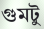
গুমটু